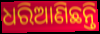
ଧରିଆଣିଛନ୍ତି